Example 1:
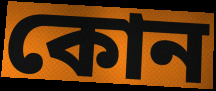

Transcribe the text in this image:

কোন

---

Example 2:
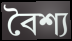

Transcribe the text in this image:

বৈশ্য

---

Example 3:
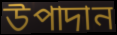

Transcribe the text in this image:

উপাদান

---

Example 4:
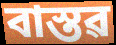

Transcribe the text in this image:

বাস্তৱ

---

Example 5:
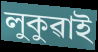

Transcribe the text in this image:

লুকুৱাই